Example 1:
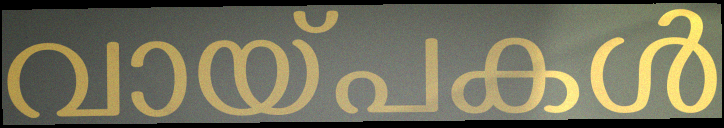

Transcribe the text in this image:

വായ്പകൾ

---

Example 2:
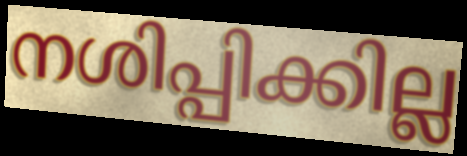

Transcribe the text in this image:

നശിപ്പിക്കില്ല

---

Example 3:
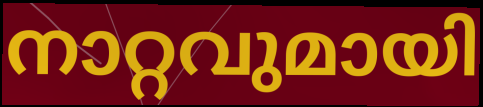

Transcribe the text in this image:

നാറ്റവുമായി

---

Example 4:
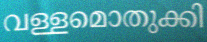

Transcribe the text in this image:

വള്ളമൊതുക്കി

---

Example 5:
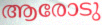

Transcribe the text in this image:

ആരോടു